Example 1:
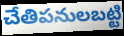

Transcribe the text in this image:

చేతిపనులబట్టి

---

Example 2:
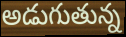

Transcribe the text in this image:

అడుగుతున్న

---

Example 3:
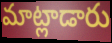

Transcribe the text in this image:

మాట్లాడారు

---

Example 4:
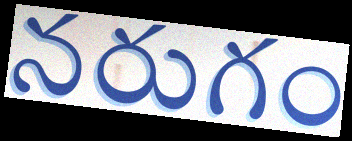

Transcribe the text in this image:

నరుగం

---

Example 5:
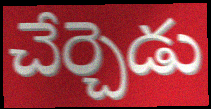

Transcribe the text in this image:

చేర్చెడు